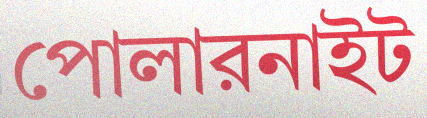
পোলারনাইট